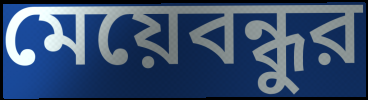
মেয়েবন্ধুর